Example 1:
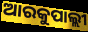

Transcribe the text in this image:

ଆରକୁପାଲ୍ଲୀ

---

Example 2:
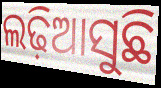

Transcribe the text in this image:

ଲଢ଼ିଆସୁଛି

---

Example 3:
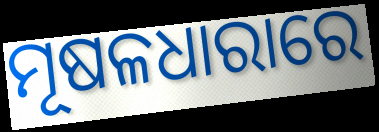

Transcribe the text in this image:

ମୂଷଳଧାରାରେ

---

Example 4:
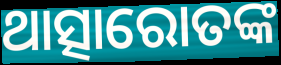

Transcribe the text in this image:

ଥାତ୍ସାରୋତଙ୍କ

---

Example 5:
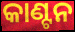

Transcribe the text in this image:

କାଣ୍ଟନ